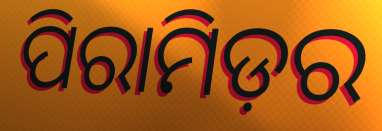
ପିରାମିଡ଼ର